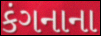
કંગનાના